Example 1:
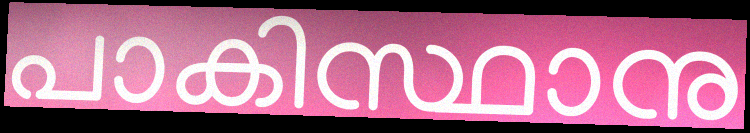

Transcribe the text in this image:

പാകിസ്ഥാനു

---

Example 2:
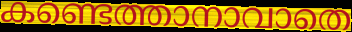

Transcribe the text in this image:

കണ്ടെത്താനാവാതെ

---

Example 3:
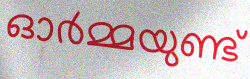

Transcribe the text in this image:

ഓർമ്മയുണ്ട്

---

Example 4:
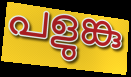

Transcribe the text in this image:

പളുങ്കു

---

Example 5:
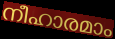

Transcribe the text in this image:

നീഹാരമാം